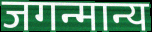
जगन्मान्य